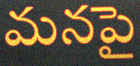
మనపై